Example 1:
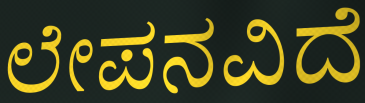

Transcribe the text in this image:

ಲೇಪನವಿದೆ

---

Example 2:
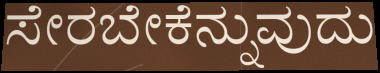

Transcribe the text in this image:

ಸೇರಬೇಕೆನ್ನುವುದು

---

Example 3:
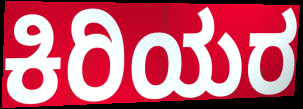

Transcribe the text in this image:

ಕಿರಿಯರ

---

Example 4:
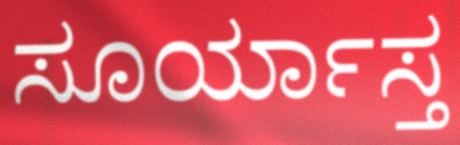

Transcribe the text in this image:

ಸೂರ್ಯಾಸ್ತ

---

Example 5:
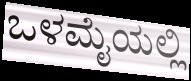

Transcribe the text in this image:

ಒಳಮೈಯಲ್ಲಿ